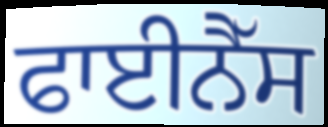
ਫਾਈਨੈੱਸ